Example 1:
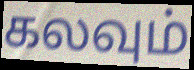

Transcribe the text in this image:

கலவும்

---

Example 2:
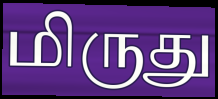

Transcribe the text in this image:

மிருது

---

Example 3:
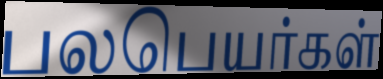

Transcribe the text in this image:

பலபெயர்கள்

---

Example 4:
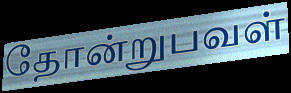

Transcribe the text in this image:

தோன்றுபவள்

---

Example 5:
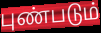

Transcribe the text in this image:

புண்படும்